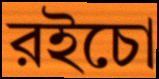
রইচো